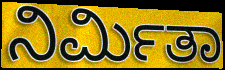
ನಿರ್ಮಿತಾ